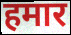
हमार